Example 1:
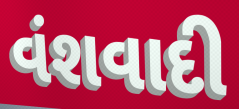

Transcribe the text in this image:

વંશવાદી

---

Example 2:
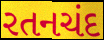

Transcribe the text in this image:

રતનચંદ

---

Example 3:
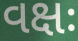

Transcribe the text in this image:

વક્ષઃ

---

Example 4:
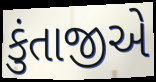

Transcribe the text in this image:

કુંતાજીએ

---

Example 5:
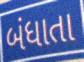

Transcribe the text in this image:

બંધાતા